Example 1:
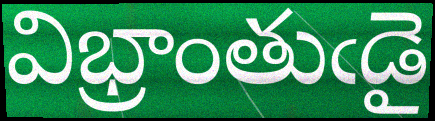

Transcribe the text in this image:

విభ్రాంతుఁడై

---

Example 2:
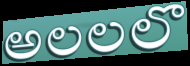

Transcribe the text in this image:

అలలలొ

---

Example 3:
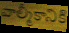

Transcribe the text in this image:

వాల్మీకానికి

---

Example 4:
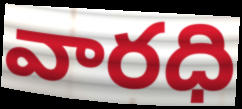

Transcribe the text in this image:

వారధి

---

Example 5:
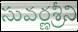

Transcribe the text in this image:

సువర్ణశ్రీని